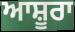
ਆਸ਼ੂਰਾ